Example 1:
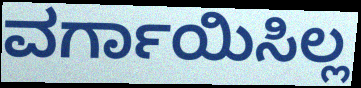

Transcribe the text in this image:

ವರ್ಗಾಯಿಸಿಲ್ಲ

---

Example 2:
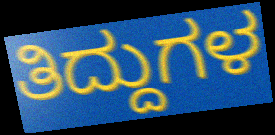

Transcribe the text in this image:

ತಿದ್ದುಗಳ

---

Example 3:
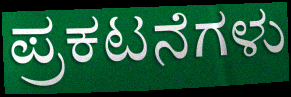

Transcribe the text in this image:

ಪ್ರಕಟನೆಗಳು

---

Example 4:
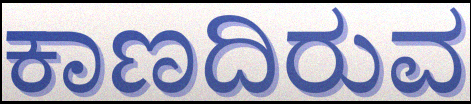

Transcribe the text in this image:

ಕಾಣದಿರುವ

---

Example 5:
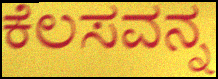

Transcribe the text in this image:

ಕೆಲಸವನ್ನ